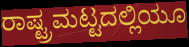
ರಾಷ್ಟ್ರಮಟ್ಟದಲ್ಲಿಯೂ